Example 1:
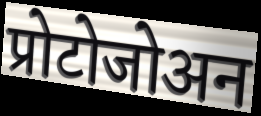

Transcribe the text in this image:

प्रोटोजोअन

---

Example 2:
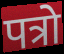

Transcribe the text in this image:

पत्रो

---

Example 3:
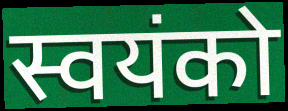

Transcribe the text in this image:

स्वयंको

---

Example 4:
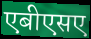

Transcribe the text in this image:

एबीएसए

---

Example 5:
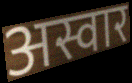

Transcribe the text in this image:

अस्वार